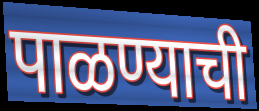
पाळण्याची